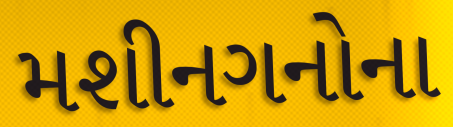
મશીનગનોના